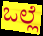
ಒಲ್ಲೆ